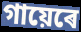
গায়েৰে